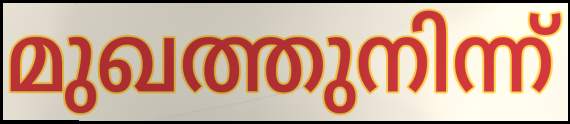
മുഖത്തുനിന്ന്